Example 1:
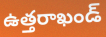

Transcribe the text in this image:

ఉత్తరాఖండ్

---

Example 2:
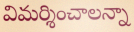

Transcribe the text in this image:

విమర్శించాలన్నా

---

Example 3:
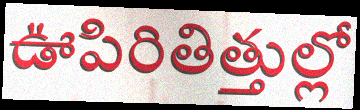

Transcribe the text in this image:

ఊపిరితిత్తుల్లో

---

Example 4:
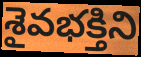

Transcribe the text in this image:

శైవభక్తిని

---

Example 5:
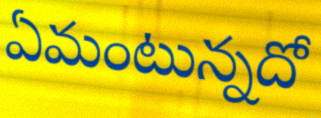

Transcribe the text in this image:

ఏమంటున్నదో